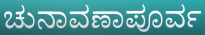
ಚುನಾವಣಾಪೂರ್ವ